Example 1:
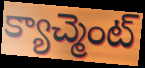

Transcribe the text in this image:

క్యాచ్మెంట్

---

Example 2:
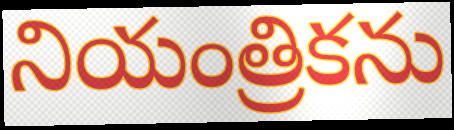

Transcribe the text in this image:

నియంత్రికను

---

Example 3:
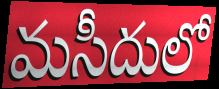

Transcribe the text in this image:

మసీదులో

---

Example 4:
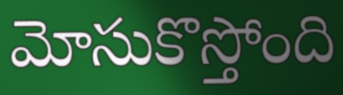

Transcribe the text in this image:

మోసుకొస్తోంది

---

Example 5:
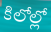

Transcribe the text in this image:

కిలోల్లో